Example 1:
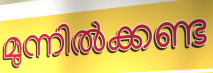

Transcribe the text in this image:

മുന്നിൽക്കണ്ട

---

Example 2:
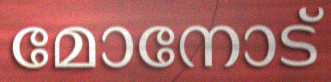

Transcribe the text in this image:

മോനോട്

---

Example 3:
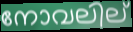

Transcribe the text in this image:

നോവലില്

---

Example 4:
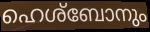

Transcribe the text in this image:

ഹെശ്ബോനും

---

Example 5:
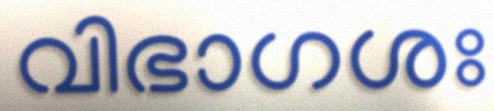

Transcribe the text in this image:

വിഭാഗശഃ